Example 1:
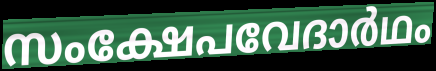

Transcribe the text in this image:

സംക്ഷേപവേദാർഥം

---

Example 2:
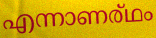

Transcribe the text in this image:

എന്നാണര്ഥം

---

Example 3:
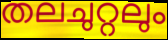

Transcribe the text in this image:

തലചുറ്റലും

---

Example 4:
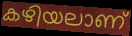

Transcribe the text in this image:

കഴിയലാണ്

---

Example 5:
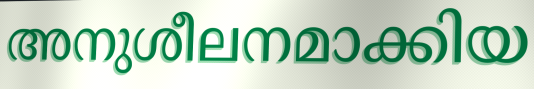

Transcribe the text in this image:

അനുശീലനമാക്കിയ